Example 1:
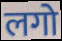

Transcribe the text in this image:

लगो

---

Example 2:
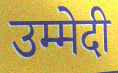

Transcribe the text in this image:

उम्मेदी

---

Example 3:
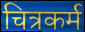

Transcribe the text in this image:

चित्रकर्म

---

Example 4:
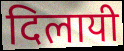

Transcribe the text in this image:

दिलायी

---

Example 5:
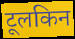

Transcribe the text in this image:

टूलकिन